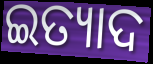
ଇତ୍ୟାଦ